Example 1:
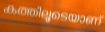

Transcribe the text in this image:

കത്തിലൂടെയാണ്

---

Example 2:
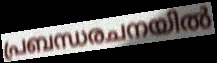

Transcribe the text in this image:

പ്രബന്ധരചനയിൽ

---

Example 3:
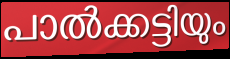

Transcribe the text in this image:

പാൽക്കട്ടിയും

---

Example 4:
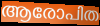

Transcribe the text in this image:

ആരോപിത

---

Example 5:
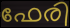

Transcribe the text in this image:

ഫേരി